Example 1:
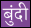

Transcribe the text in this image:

बुंदी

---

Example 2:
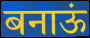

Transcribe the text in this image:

बनाऊं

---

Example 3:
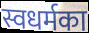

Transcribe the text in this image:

स्वधर्मका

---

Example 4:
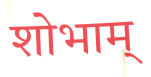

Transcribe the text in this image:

शोभाम्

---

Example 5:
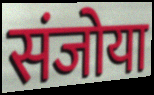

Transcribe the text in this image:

संजोया